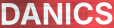
DANICS